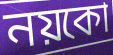
নয়কো